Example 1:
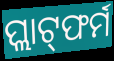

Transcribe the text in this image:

ପ୍ଲାଟ୍‌ଫର୍ମ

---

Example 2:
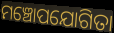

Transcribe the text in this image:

ମଞ୍ଚୋପଯୋଗିତା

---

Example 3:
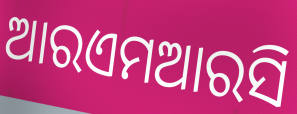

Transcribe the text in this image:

ଆରଏମଆରସି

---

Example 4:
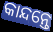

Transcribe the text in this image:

କାନ୍ଦନ୍ତେ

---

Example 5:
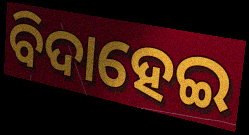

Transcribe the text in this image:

ବିଦାହେଇ